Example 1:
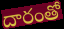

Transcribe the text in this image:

దారంతో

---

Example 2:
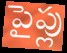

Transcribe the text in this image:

పైప్లు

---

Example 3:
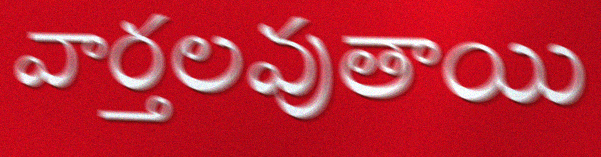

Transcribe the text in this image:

వార్తలవుతాయి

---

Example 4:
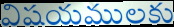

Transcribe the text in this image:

విషయములకు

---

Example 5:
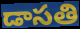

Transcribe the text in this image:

డాసతి